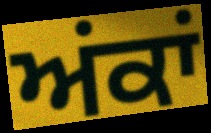
ਅਂਕਾਂ